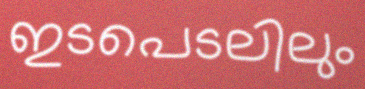
ഇടപെടലിലും